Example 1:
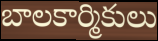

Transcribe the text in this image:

బాలకార్మికులు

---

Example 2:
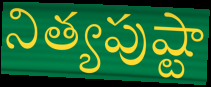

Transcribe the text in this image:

నిత్యపుష్టా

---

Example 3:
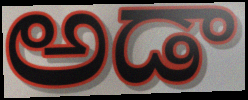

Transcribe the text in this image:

అడా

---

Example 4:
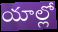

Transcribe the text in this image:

యాల్లో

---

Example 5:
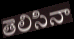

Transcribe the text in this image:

తెలిసినా